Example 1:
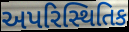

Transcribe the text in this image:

અપરિસ્થિતિક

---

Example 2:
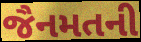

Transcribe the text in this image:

જૈનમતની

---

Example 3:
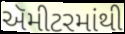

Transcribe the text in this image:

ઍમીટરમાંથી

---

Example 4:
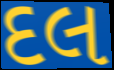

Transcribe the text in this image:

દલ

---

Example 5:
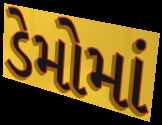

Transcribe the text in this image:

ડેમોમાં